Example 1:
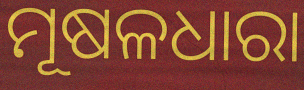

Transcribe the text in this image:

ମୂଷଳଧାରା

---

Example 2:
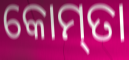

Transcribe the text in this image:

କୋମ୍‌ତା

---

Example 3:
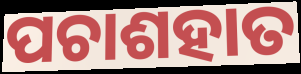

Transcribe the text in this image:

ପଚାଶହାତ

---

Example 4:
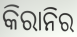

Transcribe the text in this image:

କିରାନିର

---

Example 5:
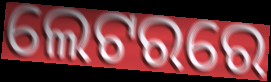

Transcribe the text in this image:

ଲେଟରରେ